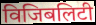
विजिबलिटी